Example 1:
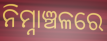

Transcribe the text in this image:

ନିମ୍ନାଞ୍ଚଳରେ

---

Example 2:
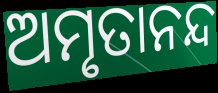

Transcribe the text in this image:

ଅମୃତାନନ୍ଦ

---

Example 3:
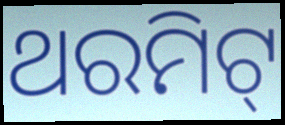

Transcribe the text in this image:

ଥରମିଟ୍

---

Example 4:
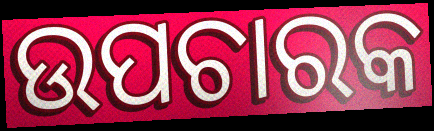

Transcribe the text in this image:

ଉପଚାରକ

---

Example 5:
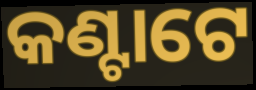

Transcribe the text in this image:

କଣ୍ଟାଟେ